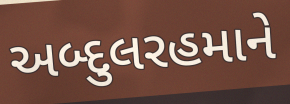
અબ્દુલરહમાને